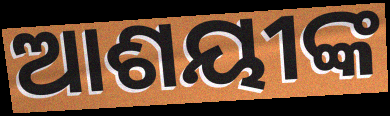
ଆଶୟୀଙ୍କ